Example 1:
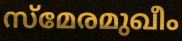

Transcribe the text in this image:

സ്മേരമുഖീം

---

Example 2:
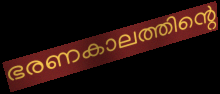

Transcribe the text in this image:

ഭരണകാലത്തിന്റെ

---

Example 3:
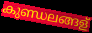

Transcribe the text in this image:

കുണ്ഡലങ്ങള്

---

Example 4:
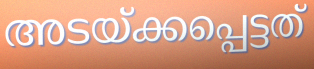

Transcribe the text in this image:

അടയ്ക്കപ്പെട്ടത്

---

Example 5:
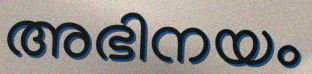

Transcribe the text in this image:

അഭിനയം